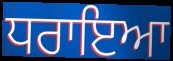
ਧਰਾਇਆ